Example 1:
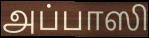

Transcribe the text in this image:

அப்பாஸி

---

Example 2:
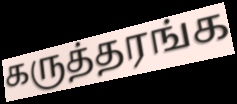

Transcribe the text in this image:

கருத்தரங்க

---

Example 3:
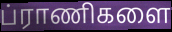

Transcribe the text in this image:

ப்ராணிகளை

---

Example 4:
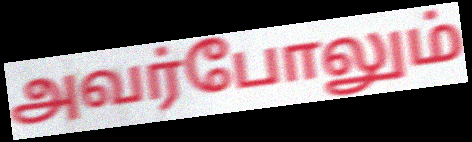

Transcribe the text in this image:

அவர்போலும்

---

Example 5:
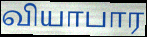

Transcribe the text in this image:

வியாபார